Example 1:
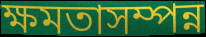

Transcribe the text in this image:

ক্ষমতাসম্পন্ন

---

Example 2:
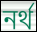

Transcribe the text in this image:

নৰ্থ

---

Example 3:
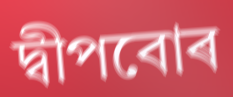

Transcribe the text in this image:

দ্বীপবোৰ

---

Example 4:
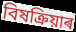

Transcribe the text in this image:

বিষক্ৰিয়াৰ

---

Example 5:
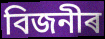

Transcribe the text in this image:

বিজনীৰ